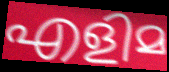
എളിമ